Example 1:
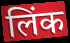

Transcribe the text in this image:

लिंक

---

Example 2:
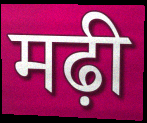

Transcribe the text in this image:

मढ़ी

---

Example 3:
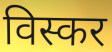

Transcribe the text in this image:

विस्कर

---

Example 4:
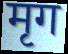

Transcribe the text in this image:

मृग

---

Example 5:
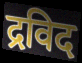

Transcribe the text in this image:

द्रविद